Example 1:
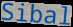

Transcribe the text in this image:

Sibal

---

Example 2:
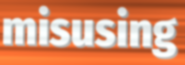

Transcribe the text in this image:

misusing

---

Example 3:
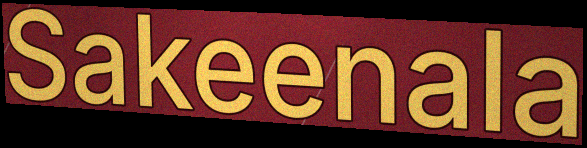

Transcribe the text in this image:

Sakeenala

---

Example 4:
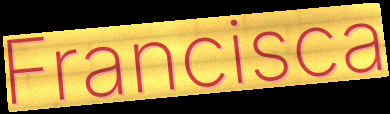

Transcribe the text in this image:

Francisca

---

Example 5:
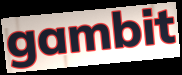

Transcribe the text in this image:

gambit